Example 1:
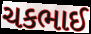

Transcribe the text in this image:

ચકભાઈ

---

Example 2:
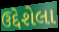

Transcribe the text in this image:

ઉદ્દેશેલા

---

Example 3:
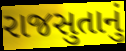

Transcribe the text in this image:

રાજસુતાનું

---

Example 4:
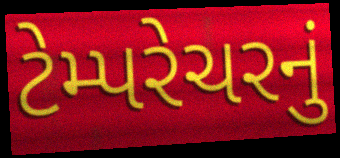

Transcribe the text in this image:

ટેમ્પરેચરનું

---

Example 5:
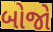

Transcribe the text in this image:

બોજો